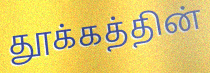
தூக்கத்தின்